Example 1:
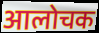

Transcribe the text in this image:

आलोचक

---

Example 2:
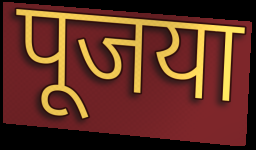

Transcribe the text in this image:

पूजया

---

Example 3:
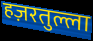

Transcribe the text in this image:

हज़रतुल्ला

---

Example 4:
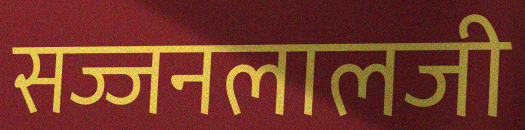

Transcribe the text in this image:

सज्जनलालजी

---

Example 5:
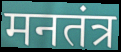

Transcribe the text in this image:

मनतंत्र